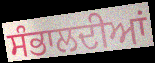
ਸੰਭਾਲਦੀਆਂ